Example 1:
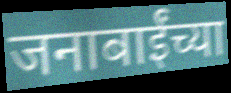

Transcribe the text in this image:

जनाबाईंच्या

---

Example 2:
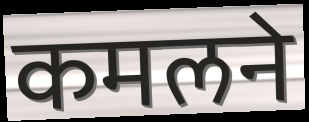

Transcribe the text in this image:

कमलने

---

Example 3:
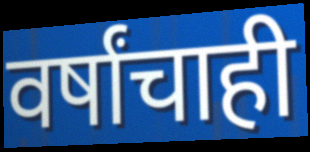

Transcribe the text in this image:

वर्षांचाही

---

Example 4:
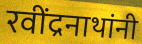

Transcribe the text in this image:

रवींद्रनाथांनी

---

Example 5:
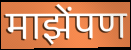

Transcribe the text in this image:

माझेंपण